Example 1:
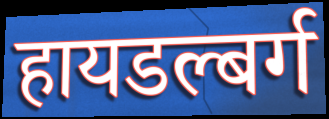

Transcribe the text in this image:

हायडल्बर्ग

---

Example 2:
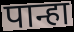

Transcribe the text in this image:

पान्हा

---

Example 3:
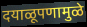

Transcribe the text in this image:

दयाळूपणामुळे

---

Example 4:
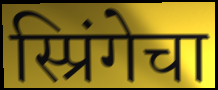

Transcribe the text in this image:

स्प्रिंगेचा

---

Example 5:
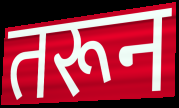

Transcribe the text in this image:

तरून